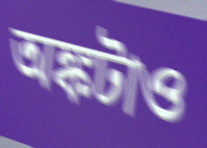
অঙ্কটাও